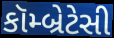
કૉમ્બ્રેટેસી